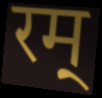
रम्